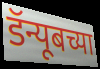
डॅन्यूबच्या